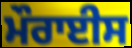
ਮੌਰਾਈਸ